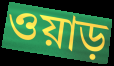
ওয়াড়